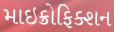
માઇક્રોફિક્શન